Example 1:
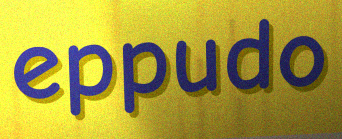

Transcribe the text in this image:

eppudo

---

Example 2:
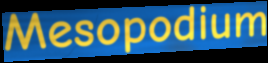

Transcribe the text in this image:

Mesopodium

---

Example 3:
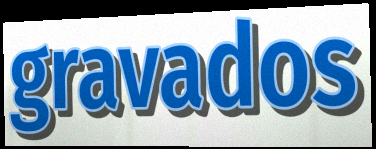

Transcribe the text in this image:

gravados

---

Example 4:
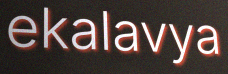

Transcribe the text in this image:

ekalavya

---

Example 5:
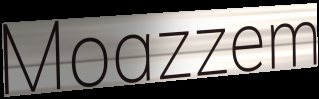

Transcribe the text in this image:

Moazzem